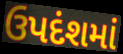
ઉપદંશમાં